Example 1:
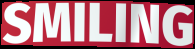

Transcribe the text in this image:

SMILING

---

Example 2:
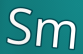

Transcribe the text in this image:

Sm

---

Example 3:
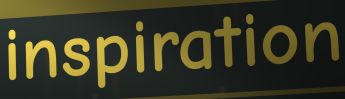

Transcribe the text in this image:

inspiration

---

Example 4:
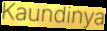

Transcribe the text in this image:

Kaundinya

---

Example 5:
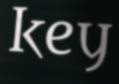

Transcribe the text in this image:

key